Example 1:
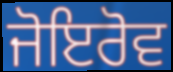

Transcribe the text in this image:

ਜੋਇਰੋਵ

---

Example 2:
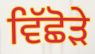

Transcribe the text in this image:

ਵਿੱਛੋੜੇ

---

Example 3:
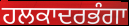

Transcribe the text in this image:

ਹਲਕਾਦਰਭੰਗਾ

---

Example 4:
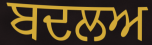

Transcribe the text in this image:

ਬਦਲਅ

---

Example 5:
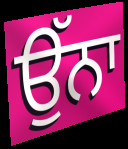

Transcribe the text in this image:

ਉੱਨਾ